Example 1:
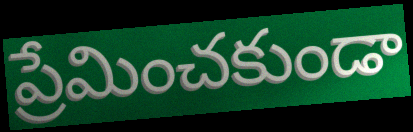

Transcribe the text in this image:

ప్రేమించకుండా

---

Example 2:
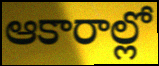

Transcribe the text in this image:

ఆకారాల్లో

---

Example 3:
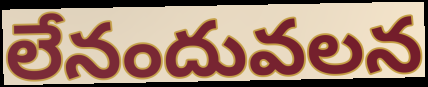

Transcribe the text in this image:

లేనందువలన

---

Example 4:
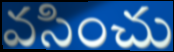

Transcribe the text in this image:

వసించు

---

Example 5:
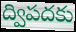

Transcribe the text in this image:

ద్విపదకు